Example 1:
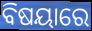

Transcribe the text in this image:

ବିଷୟାରେ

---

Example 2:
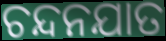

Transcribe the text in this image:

ଚନ୍ଦନଯାତ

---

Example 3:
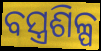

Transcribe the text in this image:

ବସ୍ତ୍ରଶିଳ୍ପ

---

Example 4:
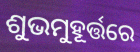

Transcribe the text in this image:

ଶୁଭମୁହୂର୍ତ୍ତରେ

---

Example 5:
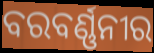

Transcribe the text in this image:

ବରବର୍ଣ୍ଣନୀର